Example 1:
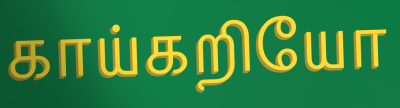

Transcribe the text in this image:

காய்கறியோ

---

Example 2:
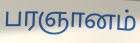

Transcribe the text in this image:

பரஞானம்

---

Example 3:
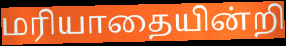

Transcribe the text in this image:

மரியாதையின்றி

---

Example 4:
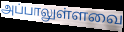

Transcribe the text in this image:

அப்பாலுள்ளவை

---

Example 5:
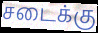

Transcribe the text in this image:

சடைக்கு